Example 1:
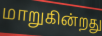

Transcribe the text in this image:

மாறுகின்றது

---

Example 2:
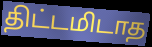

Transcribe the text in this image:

திட்டமிடாத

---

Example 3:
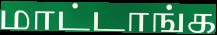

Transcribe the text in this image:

மாட்டாங்க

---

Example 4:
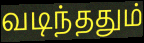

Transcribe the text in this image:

வடிந்ததும்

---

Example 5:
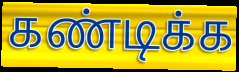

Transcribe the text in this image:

கண்டிக்க